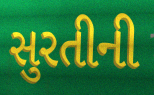
સુરતીની